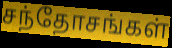
சந்தோசங்கள்